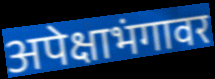
अपेक्षाभंगावर